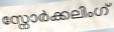
സ്നോർക്കലിംഗ്